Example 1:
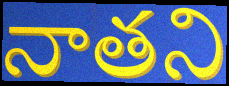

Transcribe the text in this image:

నాతని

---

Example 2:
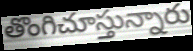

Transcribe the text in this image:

తొంగిచూస్తున్నారు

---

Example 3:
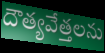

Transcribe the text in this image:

దౌత్యవేత్తలను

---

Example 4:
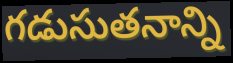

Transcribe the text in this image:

గడుసుతనాన్ని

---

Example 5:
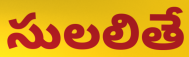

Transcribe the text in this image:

సులలితే